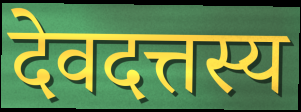
देवदत्तस्य